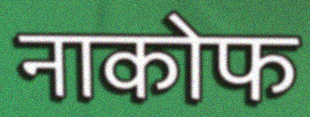
नाकोफ